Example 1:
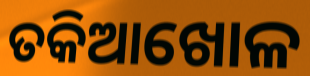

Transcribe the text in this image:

ତକିଆଖୋଳ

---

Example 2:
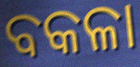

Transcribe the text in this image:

ବକଳା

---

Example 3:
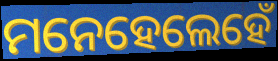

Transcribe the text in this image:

ମନେହେଲେହେଁ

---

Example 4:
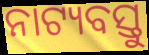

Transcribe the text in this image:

ନାଟ୍ୟବସ୍ତୁ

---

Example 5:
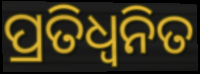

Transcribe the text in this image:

ପ୍ରତିଧ୍ଵନିତ